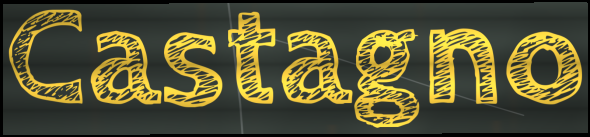
Castagno